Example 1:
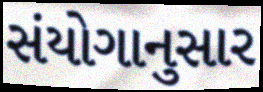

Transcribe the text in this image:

સંયોગાનુસાર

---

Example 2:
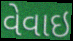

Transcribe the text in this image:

વેવાઇ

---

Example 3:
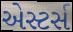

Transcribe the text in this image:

એસ્ટર્સ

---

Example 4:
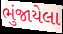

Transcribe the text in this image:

ભુંજાયેલા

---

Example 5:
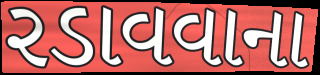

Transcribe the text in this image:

રડાવવાના